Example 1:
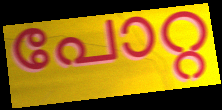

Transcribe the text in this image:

പോറ്റ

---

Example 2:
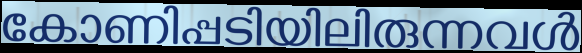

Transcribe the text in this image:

കോണിപ്പടിയിലിരുന്നവൾ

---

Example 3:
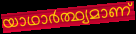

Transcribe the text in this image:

യാഥാർത്ഥ്യമാണ്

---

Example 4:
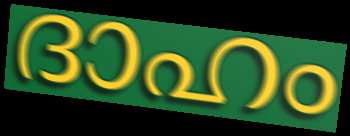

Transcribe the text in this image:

ദാഹം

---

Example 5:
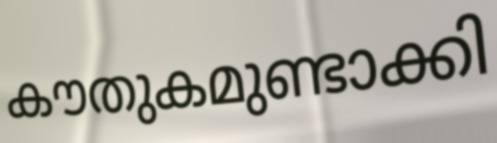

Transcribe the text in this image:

കൗതുകമുണ്ടാക്കി